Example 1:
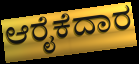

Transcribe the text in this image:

ಆರೈಕೆದಾರ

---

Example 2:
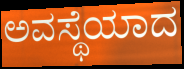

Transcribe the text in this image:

ಅವಸ್ಥೆಯಾದ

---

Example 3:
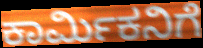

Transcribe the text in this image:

ಕಾರ್ಮಿಕನಿಗೆ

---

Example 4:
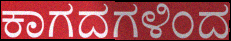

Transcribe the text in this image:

ಕಾಗದಗಳಿಂದ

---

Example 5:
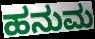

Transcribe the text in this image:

ಹನುಮ